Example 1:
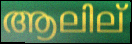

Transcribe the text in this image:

ആലില്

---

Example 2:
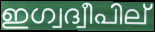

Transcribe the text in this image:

ഇഗ്വദ്വീപില്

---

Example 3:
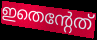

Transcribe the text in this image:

ഇതെന്റേത്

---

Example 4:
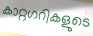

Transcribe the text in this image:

കാറ്റഗറികളുടെ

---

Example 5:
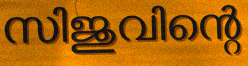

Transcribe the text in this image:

സിജുവിന്റെ